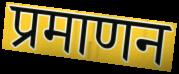
प्रमाणन